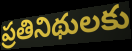
ప్రతినిథులకు